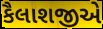
કૈલાશજીએ